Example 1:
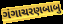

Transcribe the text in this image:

ગંગાચરણબાબુ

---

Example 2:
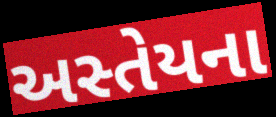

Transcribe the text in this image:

અસ્તેયના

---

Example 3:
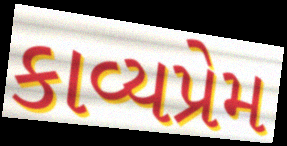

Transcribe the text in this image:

કાવ્યપ્રેમ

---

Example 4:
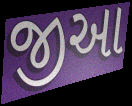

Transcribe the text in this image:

જીઆ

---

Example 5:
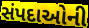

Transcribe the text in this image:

સંપદાઓની